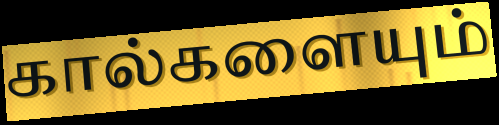
கால்களையும்